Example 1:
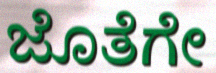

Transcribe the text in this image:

ಜೊತೆಗೇ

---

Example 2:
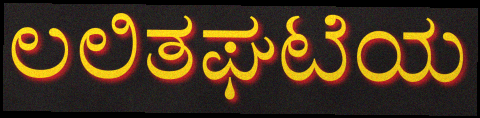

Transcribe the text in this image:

ಲಲಿತಘಟೆಯ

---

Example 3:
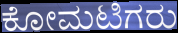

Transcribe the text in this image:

ಕೋಮಟಿಗರು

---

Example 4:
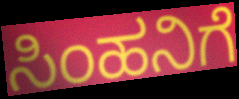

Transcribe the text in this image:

ಸಿಂಹನಿಗೆ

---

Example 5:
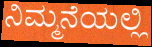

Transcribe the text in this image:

ನಿಮ್ಮನೆಯಲ್ಲಿ